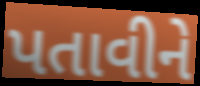
પતાવીને